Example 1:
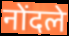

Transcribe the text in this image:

नोंदले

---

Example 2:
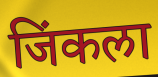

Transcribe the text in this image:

जिंकला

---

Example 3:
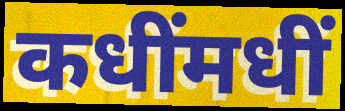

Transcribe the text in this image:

कधींमधीं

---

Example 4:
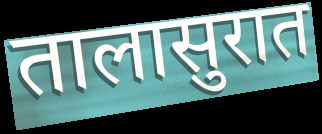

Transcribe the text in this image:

तालासुरात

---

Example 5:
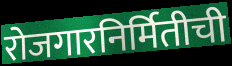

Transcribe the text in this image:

रोजगारनिर्मितीची